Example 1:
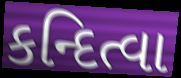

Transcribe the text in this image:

કન્દિત્વા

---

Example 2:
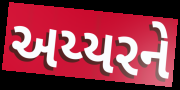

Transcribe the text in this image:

અય્યરને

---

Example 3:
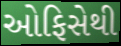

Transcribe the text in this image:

ઓફિસેથી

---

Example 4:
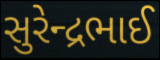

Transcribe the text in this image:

સુરેન્દ્રભાઈ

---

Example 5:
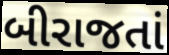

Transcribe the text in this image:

બીરાજતાં